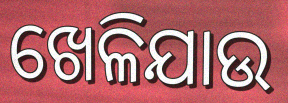
ଖେଳିଯାଉ